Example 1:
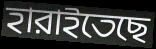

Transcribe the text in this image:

হারাইতেছে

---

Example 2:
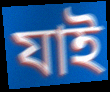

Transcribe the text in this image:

যাই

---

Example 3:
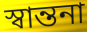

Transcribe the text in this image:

স্বান্তনা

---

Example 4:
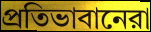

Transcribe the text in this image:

প্রতিভাবানেরা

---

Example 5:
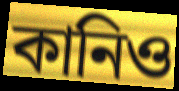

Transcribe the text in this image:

কানিও